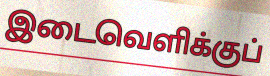
இடைவெளிக்குப்